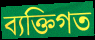
ব্যক্তিগত